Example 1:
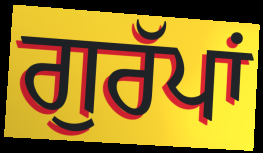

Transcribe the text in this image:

ਗੁਰੱਪਾਂ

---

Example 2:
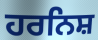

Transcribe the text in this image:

ਹਰਨਿਸ਼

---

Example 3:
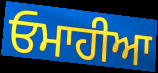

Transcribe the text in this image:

ਓਮਾਹੀਆ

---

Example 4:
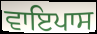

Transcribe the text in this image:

ਵਾਇਪਾਸ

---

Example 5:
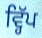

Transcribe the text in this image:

ਵ੍ਹਿੱਪ